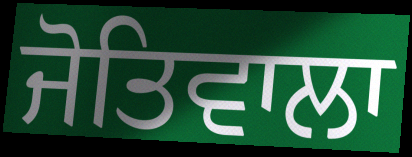
ਜੋਤਿਵਾਲਾ